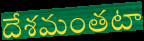
దేశమంతటా